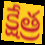
క్షేత్ర